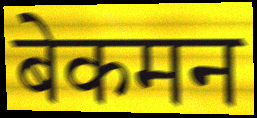
बेकमन